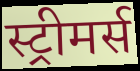
स्ट्रीमर्स